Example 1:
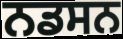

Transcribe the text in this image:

ਨਡਸਨ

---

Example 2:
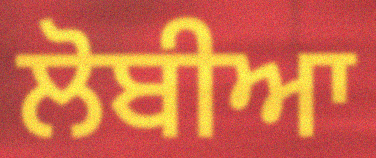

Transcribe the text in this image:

ਲੋਬੀਆ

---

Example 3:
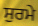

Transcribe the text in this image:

ਸੁਰਮੇ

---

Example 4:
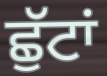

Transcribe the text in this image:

ਛੁੱਟਾਂ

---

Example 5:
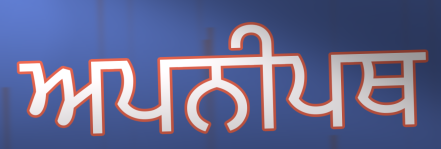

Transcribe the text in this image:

ਅਪਨੀਪਥ